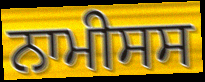
ਨਾਮੀਸਸ